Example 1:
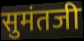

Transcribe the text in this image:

सुमंतजी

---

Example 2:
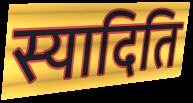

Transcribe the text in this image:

स्यादिति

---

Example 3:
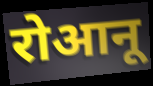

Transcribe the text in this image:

रोआनू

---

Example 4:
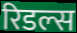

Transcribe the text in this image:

रिडल्स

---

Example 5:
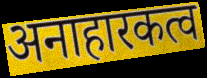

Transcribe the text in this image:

अनाहारकत्व